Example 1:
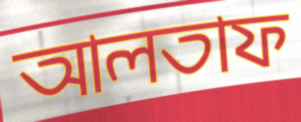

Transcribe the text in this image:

আলতাফ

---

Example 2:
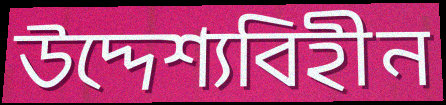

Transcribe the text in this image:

উদ্দেশ্যবিহীন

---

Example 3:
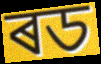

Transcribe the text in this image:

ৰড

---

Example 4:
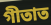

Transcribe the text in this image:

গীতাত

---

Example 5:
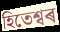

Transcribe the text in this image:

হিতেশ্বৰ